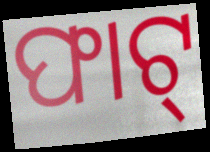
ଫାଟ୍